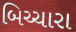
બિચ્ચારા